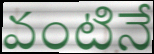
వంటినే